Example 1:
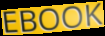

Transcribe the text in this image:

EBOOK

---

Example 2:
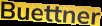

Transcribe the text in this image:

Buettner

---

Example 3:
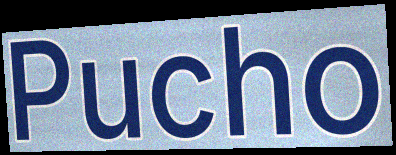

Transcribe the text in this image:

Pucho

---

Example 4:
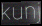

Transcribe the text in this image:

kunj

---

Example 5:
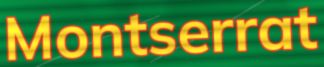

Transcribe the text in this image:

Montserrat